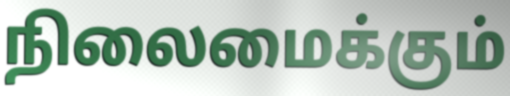
நிலைமைக்கும்